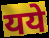
यये